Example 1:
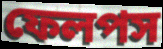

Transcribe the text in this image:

ফেলপস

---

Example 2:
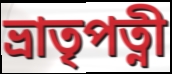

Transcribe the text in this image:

ভ্রাতৃপত্নী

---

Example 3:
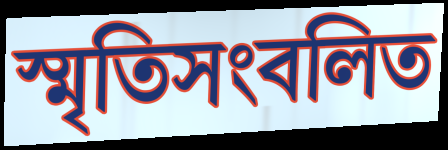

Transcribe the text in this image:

স্মৃতিসংবলিত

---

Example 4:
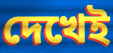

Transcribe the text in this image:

দেখেই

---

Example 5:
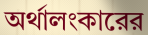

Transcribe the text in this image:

অর্থালংকারের